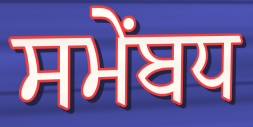
ਸਮੇਂਬਧ